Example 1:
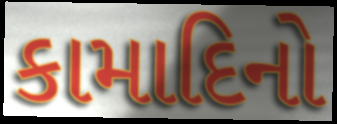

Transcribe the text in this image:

કામાદિનો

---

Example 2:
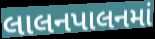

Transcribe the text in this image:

લાલનપાલનમાં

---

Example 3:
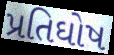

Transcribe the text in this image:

પ્રતિઘોષ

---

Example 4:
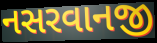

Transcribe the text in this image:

નસરવાનજી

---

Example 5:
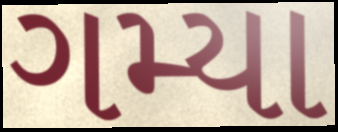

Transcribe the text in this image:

ગમ્યા